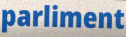
parliment